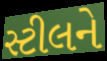
સ્ટીલને